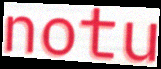
notu